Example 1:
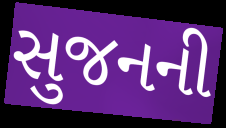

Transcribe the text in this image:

સુજનની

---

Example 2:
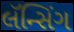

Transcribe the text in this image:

લૅન્સિંગ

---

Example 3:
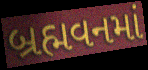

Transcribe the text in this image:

બ્રહ્મવનમાં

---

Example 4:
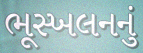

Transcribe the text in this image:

ભૂસ્ખલનનું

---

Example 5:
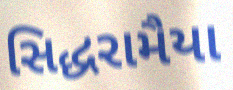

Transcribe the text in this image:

સિદ્ધરામૈયા